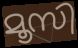
മൂസി